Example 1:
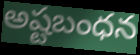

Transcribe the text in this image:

అష్టబంధన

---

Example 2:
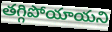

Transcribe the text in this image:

తగ్గిపోయాయని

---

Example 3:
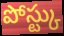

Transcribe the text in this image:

పోస్ట్కు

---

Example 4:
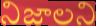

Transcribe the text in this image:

నిజాలని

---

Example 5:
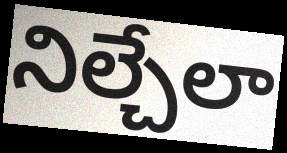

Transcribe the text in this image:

నిల్చేలా